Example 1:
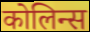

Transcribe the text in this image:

कोलिन्स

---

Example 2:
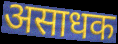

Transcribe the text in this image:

असाधक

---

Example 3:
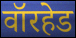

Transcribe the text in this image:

वॉरहेड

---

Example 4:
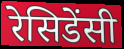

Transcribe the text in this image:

रेसिडेंसी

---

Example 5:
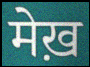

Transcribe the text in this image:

मेख़